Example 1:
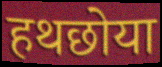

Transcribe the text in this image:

हथछोया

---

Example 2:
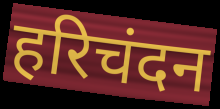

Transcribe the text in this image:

हरिचंदन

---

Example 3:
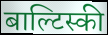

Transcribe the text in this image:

बाल्टिस्की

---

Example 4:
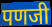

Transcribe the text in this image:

पणजी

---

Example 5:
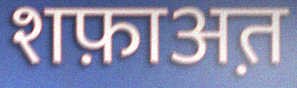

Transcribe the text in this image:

शफ़ाअ़त